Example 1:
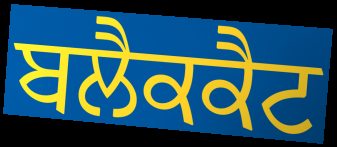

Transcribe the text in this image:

ਬਲੈਕਕੈਟ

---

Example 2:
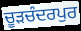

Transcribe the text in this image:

ਚੂੜਚੰਦਰਪੁਰ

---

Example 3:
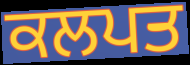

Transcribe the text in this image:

ਕਲਪਤ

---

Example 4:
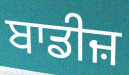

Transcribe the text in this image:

ਬਾਡੀਜ਼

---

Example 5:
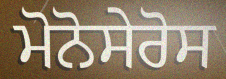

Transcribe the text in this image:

ਮੋਨੋਸੇਰੋਸ